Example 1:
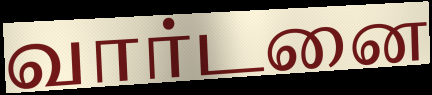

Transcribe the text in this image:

வார்டனை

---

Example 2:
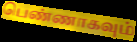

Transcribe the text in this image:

பெண்ணாகவும்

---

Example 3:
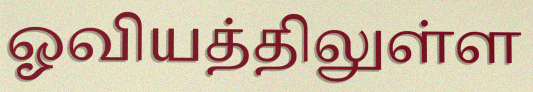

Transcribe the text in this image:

ஓவியத்திலுள்ள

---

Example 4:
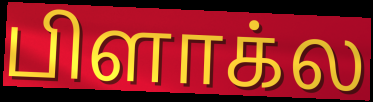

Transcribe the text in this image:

பிளாக்ல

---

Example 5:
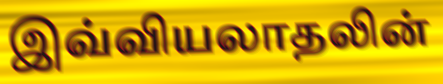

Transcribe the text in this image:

இவ்வியலாதலின்